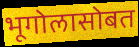
भूगोलासोबत